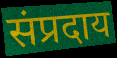
संप्रदाय